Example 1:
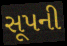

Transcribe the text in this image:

સૂપની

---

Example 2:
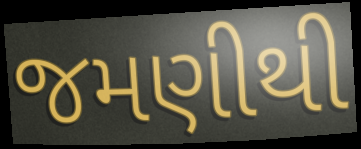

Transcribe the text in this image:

જમણીથી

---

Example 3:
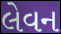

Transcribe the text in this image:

લેવન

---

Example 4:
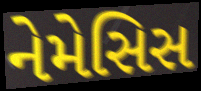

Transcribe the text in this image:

નેમેસિસ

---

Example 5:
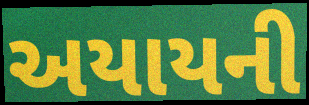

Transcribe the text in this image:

અયાયની